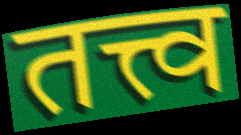
तत्त्व